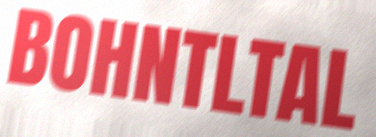
BOHNTLTAL